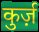
कुर्ज़